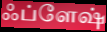
ஃப்ளேஷ்